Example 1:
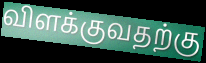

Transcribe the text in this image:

விளக்குவதற்கு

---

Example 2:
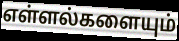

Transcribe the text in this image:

எள்ளல்களையும்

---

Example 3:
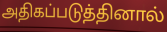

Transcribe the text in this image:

அதிகப்படுத்தினால்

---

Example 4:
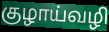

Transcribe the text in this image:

குழாய்வழி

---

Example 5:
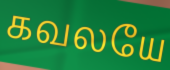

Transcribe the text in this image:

கவலயே